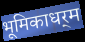
भूमिकाधर्म